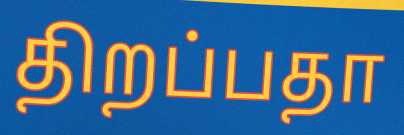
திறப்பதா